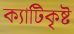
ক্যাটিকৃষ্ট